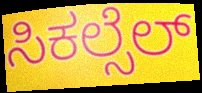
ಸಿಕಲ್ಸೆಲ್